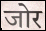
जोर